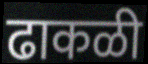
ढाकळी